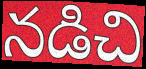
నడిచి